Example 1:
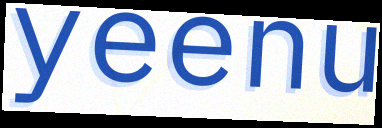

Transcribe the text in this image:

yeenu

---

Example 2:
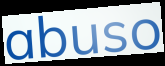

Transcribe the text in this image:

abuso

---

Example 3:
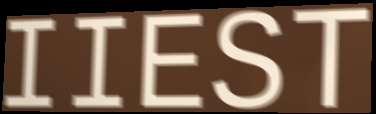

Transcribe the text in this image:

IIEST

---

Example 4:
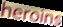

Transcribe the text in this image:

heroins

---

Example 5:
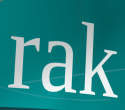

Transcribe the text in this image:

rak